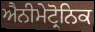
ਐਨੀਮੇਟ੍ਰੋਨਿਕ